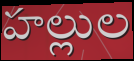
హల్లుల